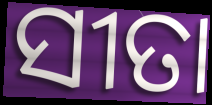
ସୀତା